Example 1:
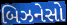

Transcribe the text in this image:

બિઝનેસો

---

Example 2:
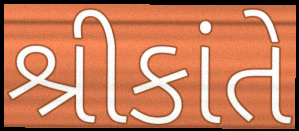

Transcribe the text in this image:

શ્રીકાંતે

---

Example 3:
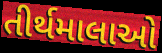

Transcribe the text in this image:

તીર્થમાલાઓ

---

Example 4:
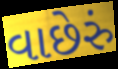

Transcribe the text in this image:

વાછેરું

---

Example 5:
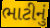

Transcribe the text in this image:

ભાટીનું